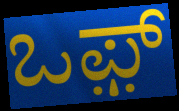
ಒಫ಼್